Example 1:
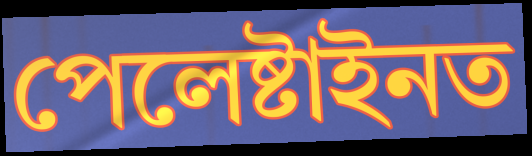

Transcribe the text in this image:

পেলেষ্টাইনত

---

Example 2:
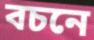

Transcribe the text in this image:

বচনে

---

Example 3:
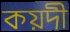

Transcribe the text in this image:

কয়দী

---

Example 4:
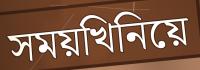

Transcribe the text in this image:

সময়খিনিয়ে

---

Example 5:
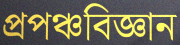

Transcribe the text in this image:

প্ৰপঞ্চবিজ্ঞান